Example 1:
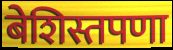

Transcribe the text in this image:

बेशिस्तपणा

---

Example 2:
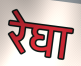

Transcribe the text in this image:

रेघा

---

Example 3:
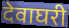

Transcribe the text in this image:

देवाघरी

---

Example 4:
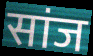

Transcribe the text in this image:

सांज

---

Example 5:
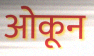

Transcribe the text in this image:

ओकून